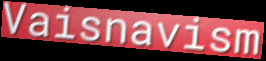
Vaisnavism